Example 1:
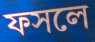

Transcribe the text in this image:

ফসলে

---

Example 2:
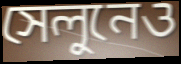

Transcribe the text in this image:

সেলুনেও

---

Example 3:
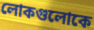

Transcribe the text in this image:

লোকগুলোকে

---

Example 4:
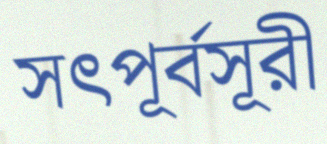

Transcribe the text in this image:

সৎপূর্বসূরী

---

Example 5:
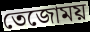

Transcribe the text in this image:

তেজোময়